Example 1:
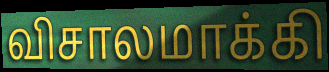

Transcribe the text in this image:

விசாலமாக்கி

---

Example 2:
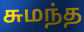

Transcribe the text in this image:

சுமந்த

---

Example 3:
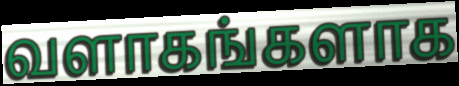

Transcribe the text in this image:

வளாகங்களாக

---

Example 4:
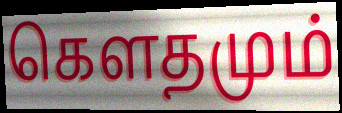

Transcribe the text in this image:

கெளதமும்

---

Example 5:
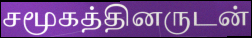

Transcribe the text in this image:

சமூகத்தினருடன்